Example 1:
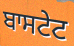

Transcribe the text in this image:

ਬਾਸਟੇਟ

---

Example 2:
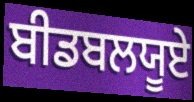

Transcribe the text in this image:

ਬੀਡਬਲਯੂਏ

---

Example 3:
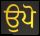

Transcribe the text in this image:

ਉਪੋ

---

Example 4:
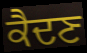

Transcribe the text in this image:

ਕੈਦਣ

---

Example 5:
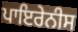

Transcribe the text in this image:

ਪਾਇਰੇਨੀਸ